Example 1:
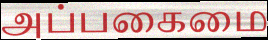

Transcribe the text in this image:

அப்பகைமை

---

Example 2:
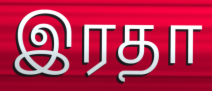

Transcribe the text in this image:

இரதா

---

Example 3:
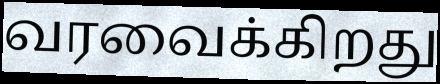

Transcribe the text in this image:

வரவைக்கிறது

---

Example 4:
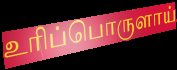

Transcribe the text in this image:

உரிப்பொருளாய்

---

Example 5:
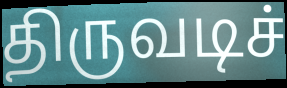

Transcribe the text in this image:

திருவடிச்